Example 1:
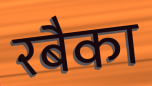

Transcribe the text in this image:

रबैका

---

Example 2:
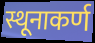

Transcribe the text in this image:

स्थूनाकर्ण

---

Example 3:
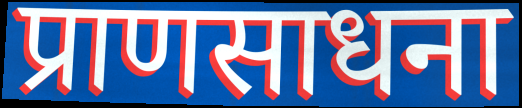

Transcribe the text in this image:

प्राणसाधना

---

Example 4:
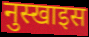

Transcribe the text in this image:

नुस्खाइस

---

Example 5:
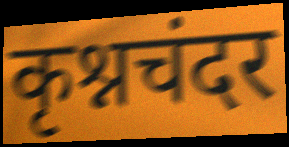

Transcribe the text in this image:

कृश्नचंदर